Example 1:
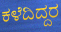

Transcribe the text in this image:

ಕಳೆದಿದ್ದರ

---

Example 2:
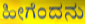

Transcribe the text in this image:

ಹೀಗೆಂದನು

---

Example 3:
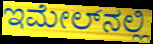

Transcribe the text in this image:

ಇಮೇಲ್‌ನಲ್ಲಿ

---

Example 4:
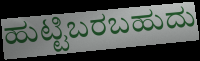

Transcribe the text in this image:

ಹುಟ್ಟಿಬರಬಹುದು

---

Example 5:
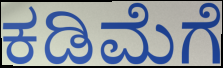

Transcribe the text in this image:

ಕಡಿಮೆಗೆ